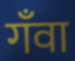
गँवा